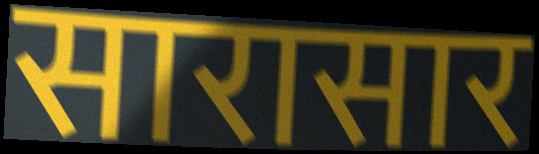
सारासार